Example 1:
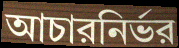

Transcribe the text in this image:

আচারনির্ভর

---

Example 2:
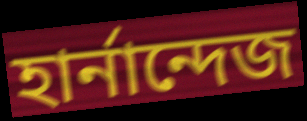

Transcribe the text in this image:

হার্নান্দেজ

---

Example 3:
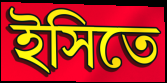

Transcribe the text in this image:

ইসিতে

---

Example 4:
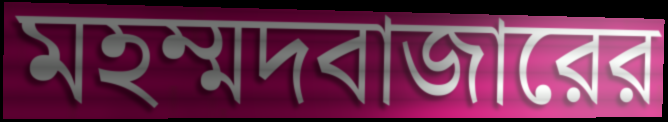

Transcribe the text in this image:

মহম্মদবাজারের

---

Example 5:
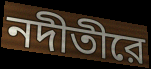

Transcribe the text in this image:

নদীতীরে